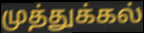
முத்துக்கல்